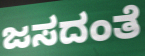
ಜಸದಂತೆ